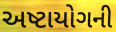
અષ્ટાયોગની